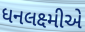
ધનલક્ષ્મીએ